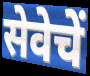
सेवेचें